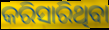
କରିସାରିଥିବା